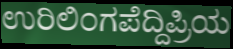
ಉರಿಲಿಂಗಪೆದ್ದಿಪ್ರಿಯ